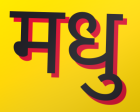
मधु